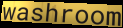
washroom